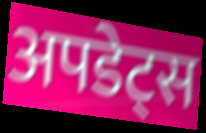
अपडेट्स